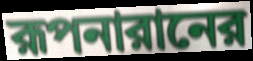
রূপনারানের